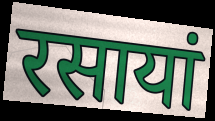
रसायां